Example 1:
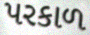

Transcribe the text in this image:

પરકાળ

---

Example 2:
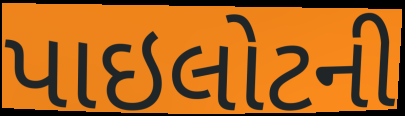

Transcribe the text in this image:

પાઇલોટની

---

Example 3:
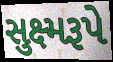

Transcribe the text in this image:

સુક્ષ્મરૂપે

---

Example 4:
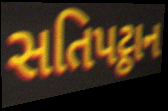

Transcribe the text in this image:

સતિપટ્ઠાન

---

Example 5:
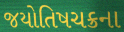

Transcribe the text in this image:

જયોતિષચક્રના